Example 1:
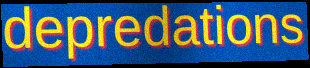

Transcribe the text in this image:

depredations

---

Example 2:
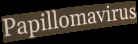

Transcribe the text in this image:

Papillomavirus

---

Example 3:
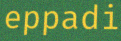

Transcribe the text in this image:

eppadi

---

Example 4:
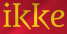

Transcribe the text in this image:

ikke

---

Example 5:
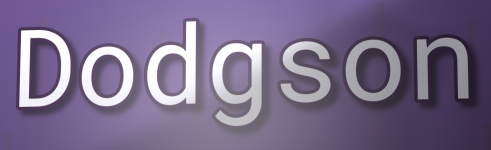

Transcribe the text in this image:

Dodgson